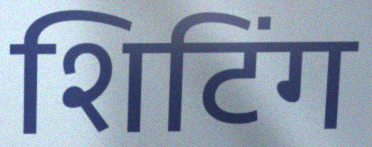
शिटिंग